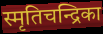
स्मृतिचन्द्रिका